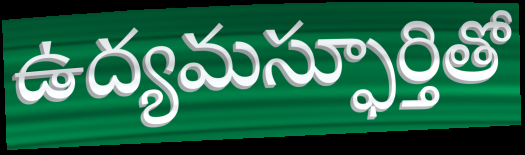
ఉద్యమస్ఫూర్తితో